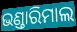
ଭଣ୍ଡାରିମାଲ